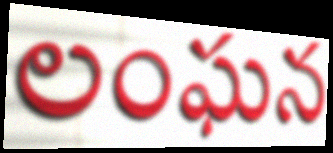
లంఘన